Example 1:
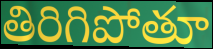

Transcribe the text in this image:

తిరిగిపోతూ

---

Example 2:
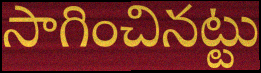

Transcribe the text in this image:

సాగించినట్టు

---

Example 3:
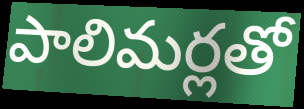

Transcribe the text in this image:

పాలిమర్లతో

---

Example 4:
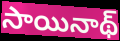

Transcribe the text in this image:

సాయినాథ్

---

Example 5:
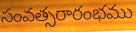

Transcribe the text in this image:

సంవత్సరారంభము